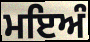
ਮਇਅੰ